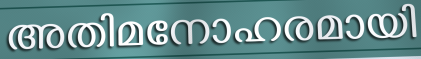
അതിമനോഹരമായി